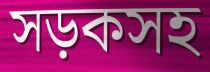
সড়কসহ